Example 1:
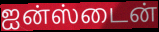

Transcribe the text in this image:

ஐன்ஸ்டைன்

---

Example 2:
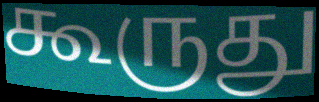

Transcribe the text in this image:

கூருது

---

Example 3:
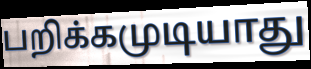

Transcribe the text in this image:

பறிக்கமுடியாது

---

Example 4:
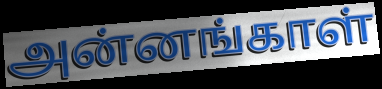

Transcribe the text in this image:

அன்னங்காள்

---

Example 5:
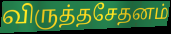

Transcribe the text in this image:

விருத்தசேதனம்